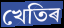
খেতিৰ